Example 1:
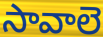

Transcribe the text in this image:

సావాలె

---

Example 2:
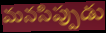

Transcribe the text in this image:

మనసిప్పుడు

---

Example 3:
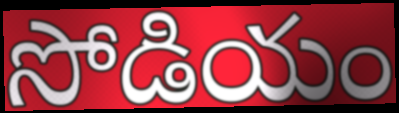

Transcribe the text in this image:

సోడియం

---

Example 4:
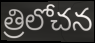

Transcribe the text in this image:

త్రిలోచన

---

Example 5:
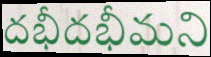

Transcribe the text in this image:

దభీదభీమని